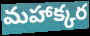
మహాక్కర